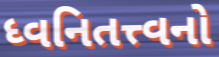
ધ્વનિતત્ત્વનો